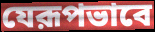
যেরূপভাবে